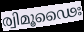
ര്വിമൂഢൈഃ